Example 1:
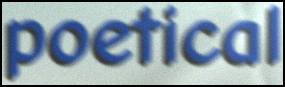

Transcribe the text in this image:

poetical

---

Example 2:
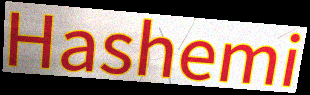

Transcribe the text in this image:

Hashemi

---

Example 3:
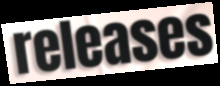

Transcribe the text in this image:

releases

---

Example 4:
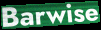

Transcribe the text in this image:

Barwise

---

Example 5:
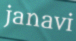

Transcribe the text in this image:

janavi